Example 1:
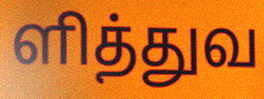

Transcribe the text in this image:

ளித்துவ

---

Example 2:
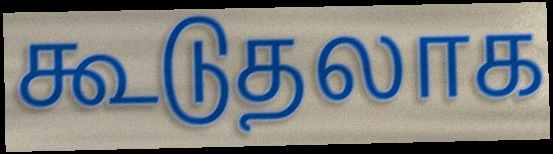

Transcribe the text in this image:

கூடுதலாக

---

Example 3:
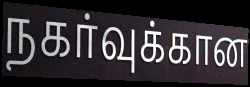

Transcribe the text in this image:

நகர்வுக்கான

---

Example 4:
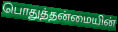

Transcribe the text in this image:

பொதுத்தன்மையின்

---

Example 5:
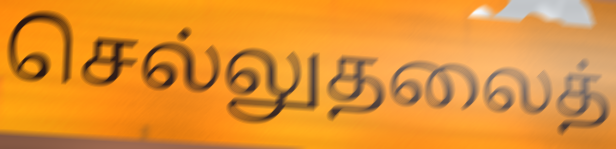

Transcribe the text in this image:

செல்லுதலைத்